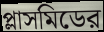
প্লাসমিডের